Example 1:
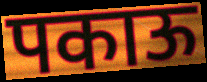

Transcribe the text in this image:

पकाऊ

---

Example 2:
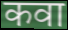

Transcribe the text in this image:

कवा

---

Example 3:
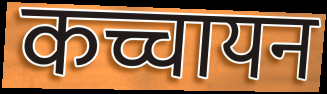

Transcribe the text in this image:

कच्चायन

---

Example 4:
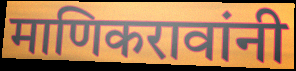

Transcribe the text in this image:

माणिकरावांनी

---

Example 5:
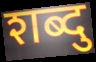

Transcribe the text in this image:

शब्दु